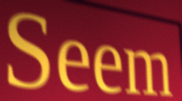
Seem